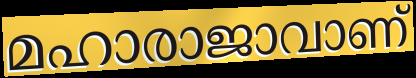
മഹാരാജാവാണ്